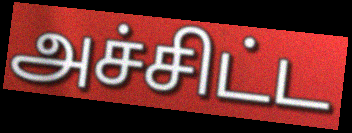
அச்சிட்ட